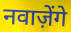
नवाज़ेंगे